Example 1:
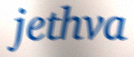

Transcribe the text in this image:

jethva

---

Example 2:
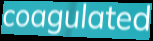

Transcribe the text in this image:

coagulated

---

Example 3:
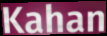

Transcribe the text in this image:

Kahan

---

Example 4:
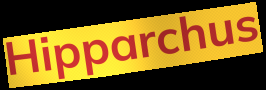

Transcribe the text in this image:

Hipparchus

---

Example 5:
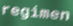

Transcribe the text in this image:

regimen